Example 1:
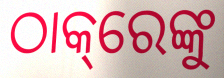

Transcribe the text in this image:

ଠାକ୍‌ରେଙ୍କୁ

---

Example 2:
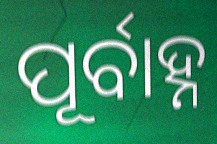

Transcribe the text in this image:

ପୂର୍ବାହ୍ନ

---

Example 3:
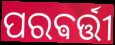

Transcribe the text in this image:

ପରଵର୍ତ୍ତୀ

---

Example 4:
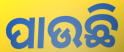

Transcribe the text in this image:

ପାଉଛି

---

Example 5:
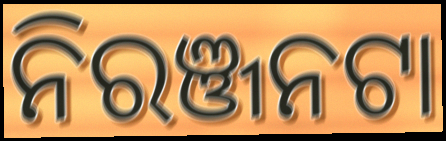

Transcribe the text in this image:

ନିରଞ୍ଜନଟା